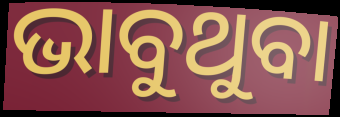
ଭାବୁଥୁବା